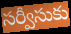
సర్వీసుకు